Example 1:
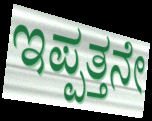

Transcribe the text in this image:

ಇಪ್ಪತ್ತನೇ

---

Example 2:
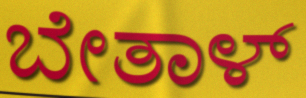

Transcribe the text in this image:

ಬೇತಾಳ್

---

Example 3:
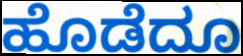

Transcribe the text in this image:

ಹೊಡೆದೂ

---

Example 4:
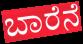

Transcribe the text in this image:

ಬಾರೆನೆ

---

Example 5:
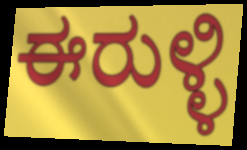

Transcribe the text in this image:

ಈರುಳ್ಳಿ